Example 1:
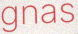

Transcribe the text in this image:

gnas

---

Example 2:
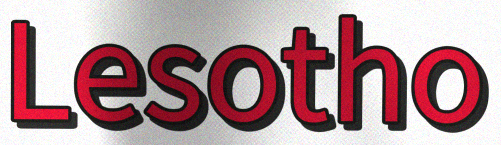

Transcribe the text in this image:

Lesotho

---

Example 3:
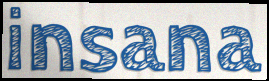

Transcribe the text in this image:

insana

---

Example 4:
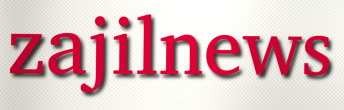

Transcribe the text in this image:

zajilnews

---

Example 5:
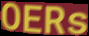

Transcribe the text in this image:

OERs